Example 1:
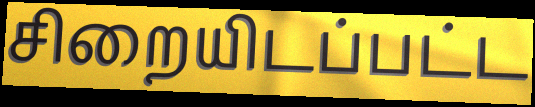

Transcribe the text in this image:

சிறையிடப்பட்ட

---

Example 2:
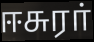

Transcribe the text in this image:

ஈசுரர்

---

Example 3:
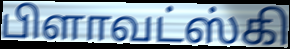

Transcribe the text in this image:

பிளாவட்ஸ்கி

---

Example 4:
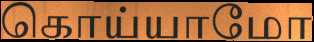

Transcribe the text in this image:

கொய்யாமோ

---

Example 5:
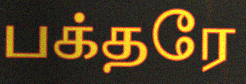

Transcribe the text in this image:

பக்தரே